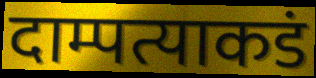
दाम्पत्याकडं